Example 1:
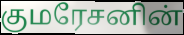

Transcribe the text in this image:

குமரேசனின்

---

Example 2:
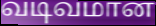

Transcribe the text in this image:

வடிவமான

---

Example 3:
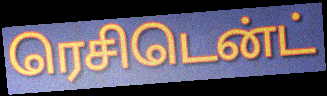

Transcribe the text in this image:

ரெசிடென்ட்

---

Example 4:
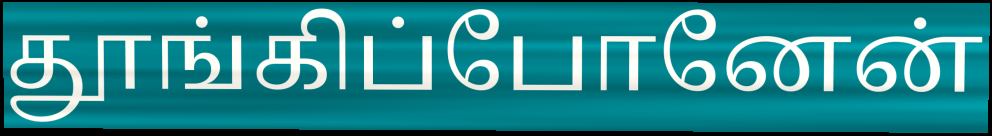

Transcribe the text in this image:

தூங்கிப்போனேன்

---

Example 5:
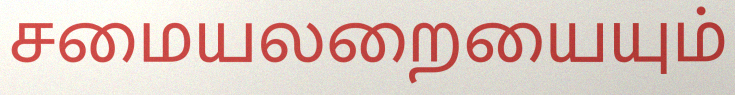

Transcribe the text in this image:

சமையலறையையும்